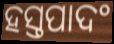
ହସ୍ତପାଦଂ